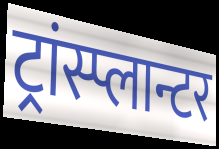
ट्रांस्प्लान्टर